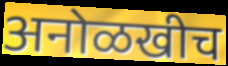
अनोळखीच